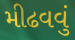
મીઢવવું